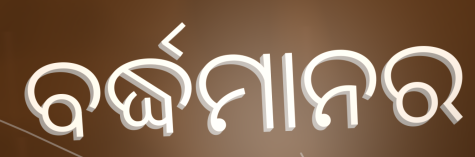
ବର୍ଦ୍ଧମାନର